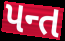
પન્ત